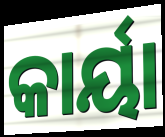
କାର୍ୟା